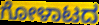
ಗೋಳಾಟದ